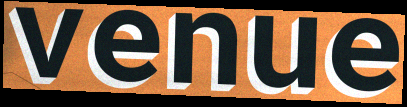
venue